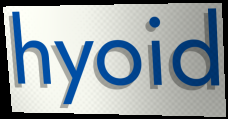
hyoid